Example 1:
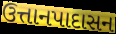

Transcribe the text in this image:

ઉત્તાનપાદાસન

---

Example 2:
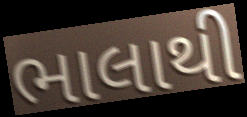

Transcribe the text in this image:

ભાલાથી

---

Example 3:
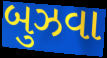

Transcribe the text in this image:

બુઝવા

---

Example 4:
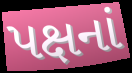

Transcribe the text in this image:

પક્ષનાં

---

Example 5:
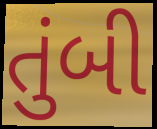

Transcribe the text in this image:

તુંબી